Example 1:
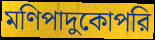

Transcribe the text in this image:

মণিপাদুকোপরি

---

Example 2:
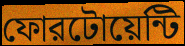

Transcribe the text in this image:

ফোরটোয়েন্টি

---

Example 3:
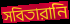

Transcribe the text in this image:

সবিতারানি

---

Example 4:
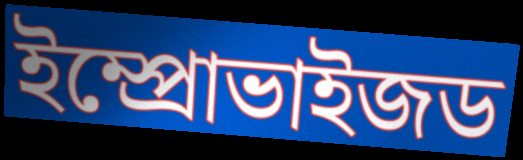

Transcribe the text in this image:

ইম্প্রোভাইজড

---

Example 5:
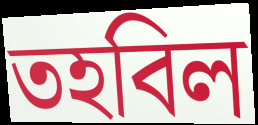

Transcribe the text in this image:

তহবিল